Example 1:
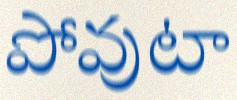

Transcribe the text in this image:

పోవుటా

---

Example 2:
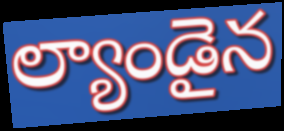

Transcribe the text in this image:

ల్యాండైన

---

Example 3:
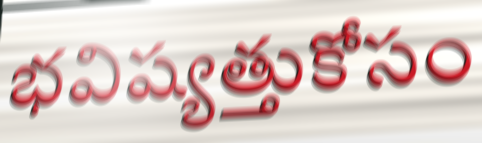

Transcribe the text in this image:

భవిష్యత్తుకోసం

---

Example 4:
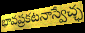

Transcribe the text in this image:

భావప్రకటనాస్వేచ్ఛ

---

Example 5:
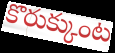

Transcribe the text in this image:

కొరుక్కుంట